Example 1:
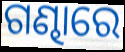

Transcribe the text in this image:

ଗଣ୍ଢାରେ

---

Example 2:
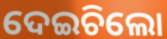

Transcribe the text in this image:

ଦେଇଚିଲୋ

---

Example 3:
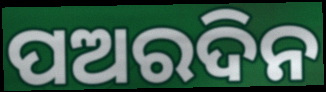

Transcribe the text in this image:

ପଅରଦିନ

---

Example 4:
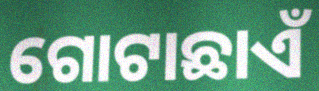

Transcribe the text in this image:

ଗୋଟାଛାଏଁ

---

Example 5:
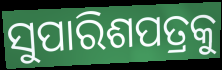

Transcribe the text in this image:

ସୁପାରିଶପତ୍ରକୁ